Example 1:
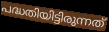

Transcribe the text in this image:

പദ്ധതിയിട്ടിരുന്നത്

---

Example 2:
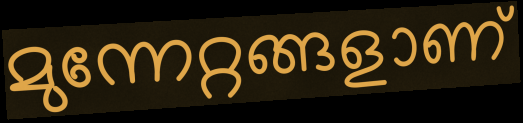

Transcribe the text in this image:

മുന്നേറ്റങ്ങളാണ്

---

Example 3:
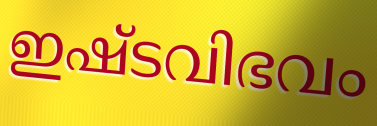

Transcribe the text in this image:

ഇഷ്ടവിഭവം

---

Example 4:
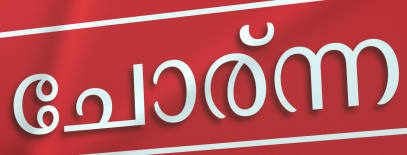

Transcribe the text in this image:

ചോര്ന്ന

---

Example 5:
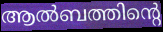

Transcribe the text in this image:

ആൽബത്തിന്റെ